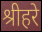
श्रीहरे